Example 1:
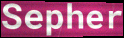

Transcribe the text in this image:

Sepher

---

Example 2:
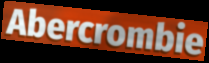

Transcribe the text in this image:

Abercrombie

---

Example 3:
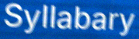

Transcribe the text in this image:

Syllabary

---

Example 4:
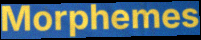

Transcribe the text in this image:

Morphemes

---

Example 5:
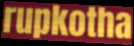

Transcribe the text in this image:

rupkotha